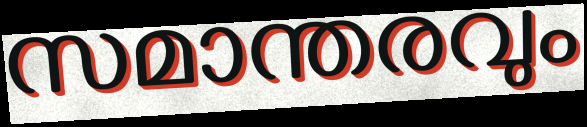
സമാന്തരവും